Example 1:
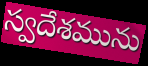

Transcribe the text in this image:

స్వదేశమును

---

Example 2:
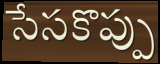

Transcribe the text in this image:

సేసకొప్పు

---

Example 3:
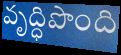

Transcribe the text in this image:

వృద్ధిపొంది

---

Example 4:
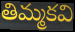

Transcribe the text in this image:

తిమ్మకవి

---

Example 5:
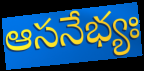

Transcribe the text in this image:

ఆసనేభ్యః